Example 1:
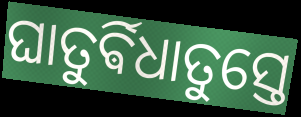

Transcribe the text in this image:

ଘାତୁର୍ଵିଧାତୁସ୍ତେ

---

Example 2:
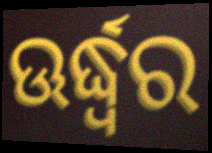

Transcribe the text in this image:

ଊର୍ଦ୍ଧ୍ଵର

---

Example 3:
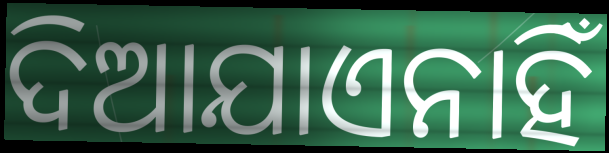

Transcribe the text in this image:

ଦିଆଯାଏନାହିଁ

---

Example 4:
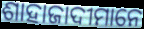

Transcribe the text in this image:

ଶାହାଜାଦୀମାନେ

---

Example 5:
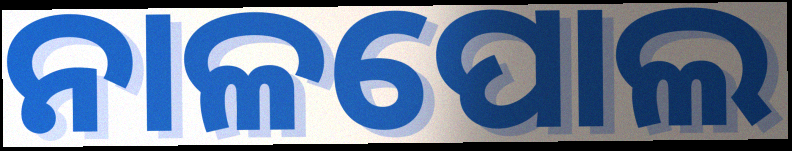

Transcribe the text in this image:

ନାଳପୋଲ